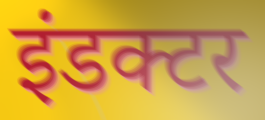
इंडक्टर